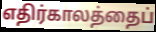
எதிர்காலத்தைப்